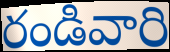
రండివారి